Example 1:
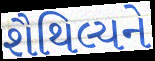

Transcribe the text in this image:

શૈથિલ્યને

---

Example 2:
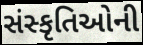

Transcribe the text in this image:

સંસ્કૃતિઓની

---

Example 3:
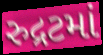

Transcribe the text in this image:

રુદ્રટમાં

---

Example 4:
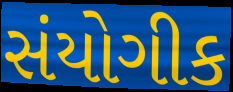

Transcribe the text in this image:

સંયોગીક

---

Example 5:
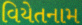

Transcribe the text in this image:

વિયેતનામ